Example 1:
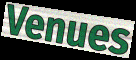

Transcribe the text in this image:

Venues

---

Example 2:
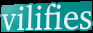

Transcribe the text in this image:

vilifies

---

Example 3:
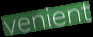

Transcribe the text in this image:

venient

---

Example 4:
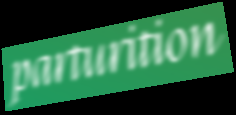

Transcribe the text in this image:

parturition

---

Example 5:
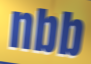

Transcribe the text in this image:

nbb